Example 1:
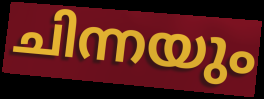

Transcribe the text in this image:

ചിന്നയും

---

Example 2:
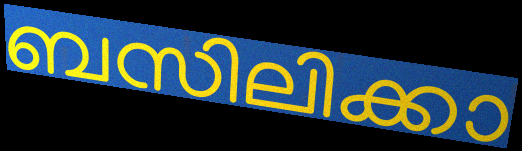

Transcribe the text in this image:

ബസിലിക്കാ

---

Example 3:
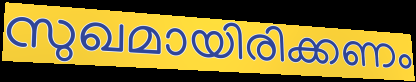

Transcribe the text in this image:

സുഖമായിരിക്കണം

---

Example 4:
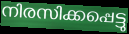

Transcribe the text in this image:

നിരസിക്കപ്പെട്ടു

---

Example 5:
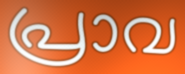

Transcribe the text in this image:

പ്രാവ